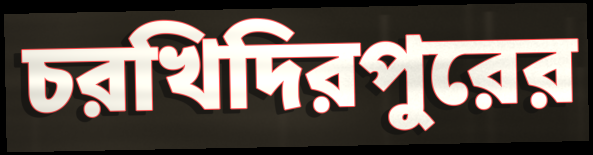
চরখিদিরপুরের